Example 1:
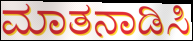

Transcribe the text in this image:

ಮಾತನಾಡಿಸಿ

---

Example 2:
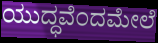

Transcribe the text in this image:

ಯುದ್ಧವೆಂದಮೇಲೆ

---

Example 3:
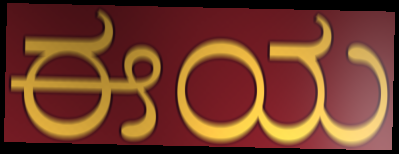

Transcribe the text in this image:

ಈಯ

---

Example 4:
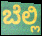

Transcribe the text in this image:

ಬೆಲ್ಲಿ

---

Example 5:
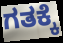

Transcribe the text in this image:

ಗತಕ್ಕೆ